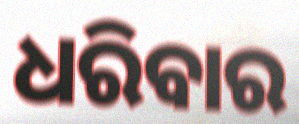
ଧରିବାର